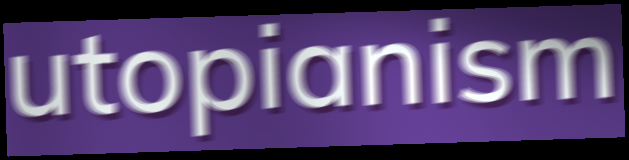
utopianism